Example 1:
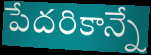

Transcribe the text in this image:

పేదరికాన్నే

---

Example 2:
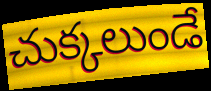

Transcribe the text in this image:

చుక్కలుండే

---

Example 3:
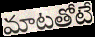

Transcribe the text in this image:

మాటతోటే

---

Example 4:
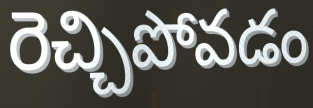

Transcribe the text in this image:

రెచ్చిపోవడం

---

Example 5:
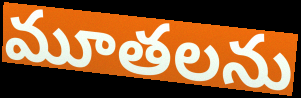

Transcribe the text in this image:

మూతలను